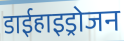
डाईहाइड्रोजन